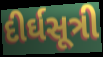
દીર્ઘસૂત્રી